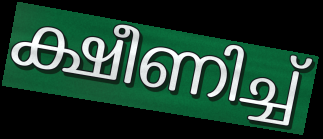
ക്ഷീണിച്ച്